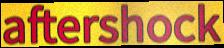
aftershock